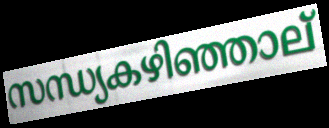
സന്ധ്യകഴിഞ്ഞാല്